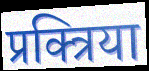
प्रक्त्रिया